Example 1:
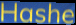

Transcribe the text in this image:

Hashe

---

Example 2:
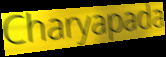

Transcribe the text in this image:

Charyapada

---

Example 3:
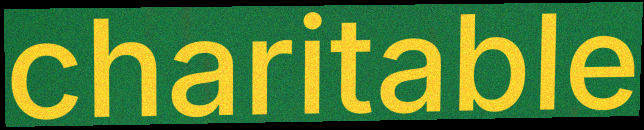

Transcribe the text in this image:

charitable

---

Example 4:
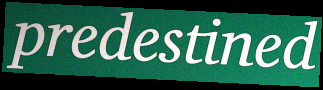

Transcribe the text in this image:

predestined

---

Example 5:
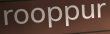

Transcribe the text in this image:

rooppur